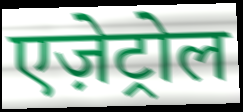
एज़ेट्रोल